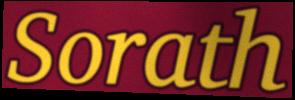
Sorath